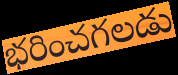
భరించగలడు